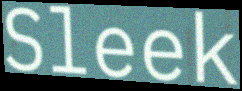
Sleek